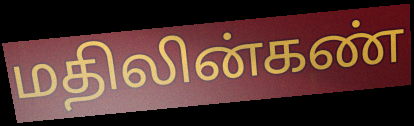
மதிலின்கண்